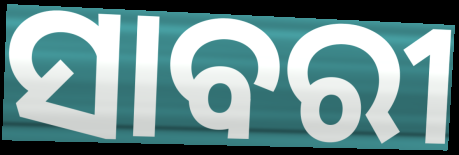
ସାବରୀ